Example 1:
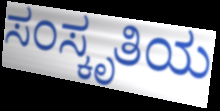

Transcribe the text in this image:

ಸಂಸ್ಕೃತಿಯ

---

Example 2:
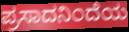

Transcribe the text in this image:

ಪ್ರಸಾದನಿಂದೆಯ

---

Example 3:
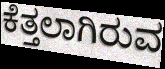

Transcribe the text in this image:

ಕೆತ್ತಲಾಗಿರುವ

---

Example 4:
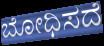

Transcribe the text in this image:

ಬೋಧಿಸದೆ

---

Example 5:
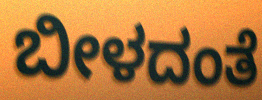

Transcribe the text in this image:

ಬೀಳದಂತೆ